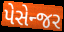
પેસેન્જર